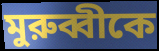
মুরুব্বীকে